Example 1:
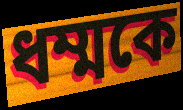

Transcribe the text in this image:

ধম্মকে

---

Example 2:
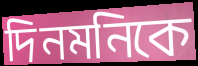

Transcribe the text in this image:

দিনমনিকে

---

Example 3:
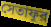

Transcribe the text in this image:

সেতাফুর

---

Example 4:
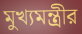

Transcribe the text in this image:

মুখ্যমন্ত্রীর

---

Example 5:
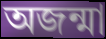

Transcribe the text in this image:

অজন্মা